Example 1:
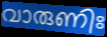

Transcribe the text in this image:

വാരുണിഃ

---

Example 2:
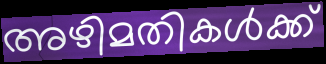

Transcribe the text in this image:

അഴിമതികൾക്ക്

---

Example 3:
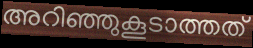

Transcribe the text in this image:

അറിഞ്ഞുകൂടാത്തത്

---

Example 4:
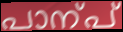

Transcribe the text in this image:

പാന്പ്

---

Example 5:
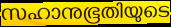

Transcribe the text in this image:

സഹാനുഭൂതിയുടെ